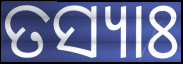
ତସ୍ୟାଃ